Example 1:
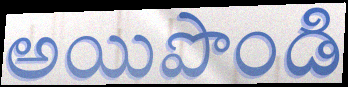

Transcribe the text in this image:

అయిపొండి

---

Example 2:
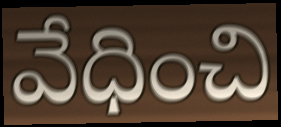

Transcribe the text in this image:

వేధించి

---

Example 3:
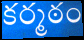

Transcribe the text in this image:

కర్మఠం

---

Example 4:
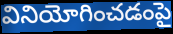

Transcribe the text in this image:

వినియోగించడంపై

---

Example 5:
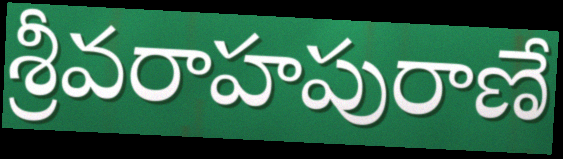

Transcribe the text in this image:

శ్రీవరాహపురాణే